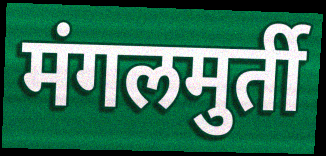
मंगलमुर्ती